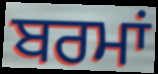
ਬਰਮਾਂ